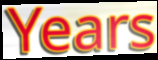
Years